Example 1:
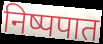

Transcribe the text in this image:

निष्पपात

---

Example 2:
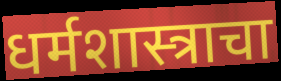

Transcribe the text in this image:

धर्मशास्त्राचा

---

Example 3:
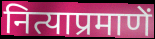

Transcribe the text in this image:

नित्याप्रमाणें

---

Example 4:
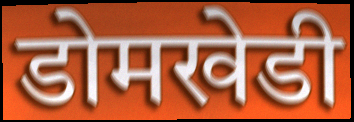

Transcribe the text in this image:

डोमखेडी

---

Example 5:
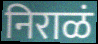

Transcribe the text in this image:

निराळं